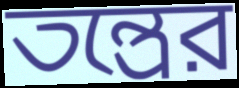
তন্ত্রের